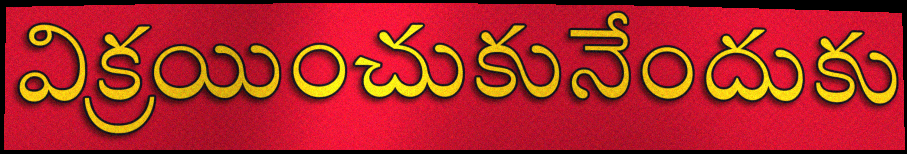
విక్రయించుకునేందుకు